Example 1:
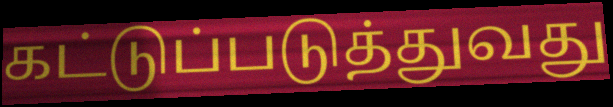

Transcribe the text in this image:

கட்டுப்படுத்துவது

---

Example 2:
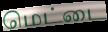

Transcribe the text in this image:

மெட்டை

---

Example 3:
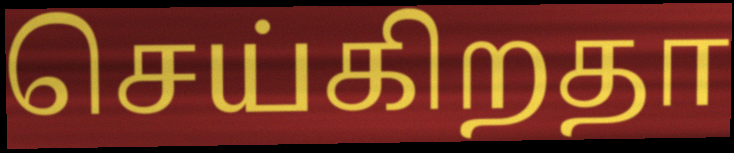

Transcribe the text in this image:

செய்கிறதா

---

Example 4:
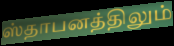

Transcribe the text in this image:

ஸ்தாபனத்திலும்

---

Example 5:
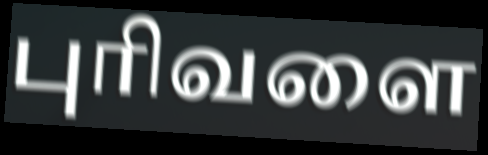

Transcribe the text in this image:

புரிவளை